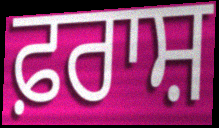
ਫ਼ਰਾਸ਼